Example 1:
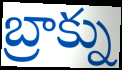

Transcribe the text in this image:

బ్రాక్ను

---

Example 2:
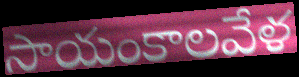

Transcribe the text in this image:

సాయంకాలవేళ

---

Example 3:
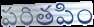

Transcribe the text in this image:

పరితపిం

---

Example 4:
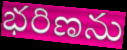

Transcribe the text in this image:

భరిణను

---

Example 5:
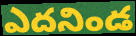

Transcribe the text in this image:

ఎదనిండ